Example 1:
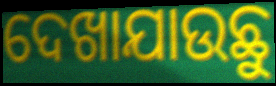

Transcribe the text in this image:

ଦେଖାଯାଉଛୁ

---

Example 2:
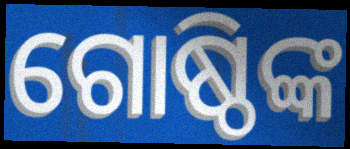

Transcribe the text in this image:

ଗୋଷ୍ଠିଙ୍କ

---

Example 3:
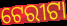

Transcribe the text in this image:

ଟେରୀଟା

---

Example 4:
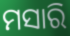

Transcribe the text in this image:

ମସାରି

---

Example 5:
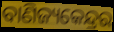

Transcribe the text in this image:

ବାଣିଜ୍ୟକେନ୍ଦ୍ରର